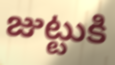
జుట్టుకి